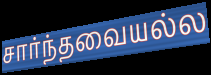
சார்ந்தவையல்ல